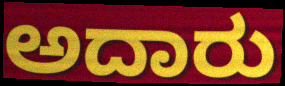
ಅದಾರು